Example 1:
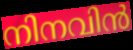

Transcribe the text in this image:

നിനവിൻ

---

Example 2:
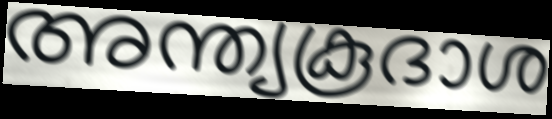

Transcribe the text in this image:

അന്ത്യകൂദാശ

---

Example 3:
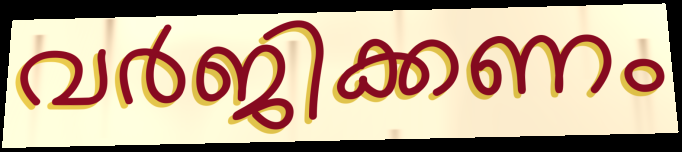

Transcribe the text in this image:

വർജിക്കണം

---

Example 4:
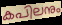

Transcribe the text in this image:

കപിലനും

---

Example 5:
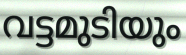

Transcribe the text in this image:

വട്ടമുടിയും